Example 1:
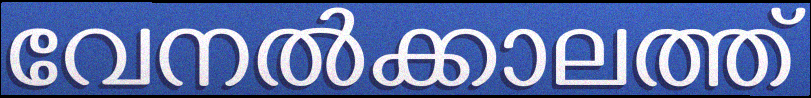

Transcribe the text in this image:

വേനൽക്കാലത്ത്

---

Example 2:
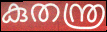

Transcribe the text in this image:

കുതന്ത്ര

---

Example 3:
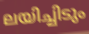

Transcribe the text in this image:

ലയിച്ചിടും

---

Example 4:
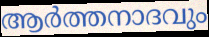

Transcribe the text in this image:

ആർത്തനാദവും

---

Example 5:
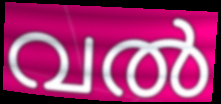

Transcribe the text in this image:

വൽ